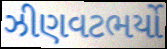
ઝીણવટભર્યો